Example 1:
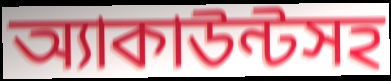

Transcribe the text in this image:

অ্যাকাউন্টসহ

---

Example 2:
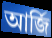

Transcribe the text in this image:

আর্জি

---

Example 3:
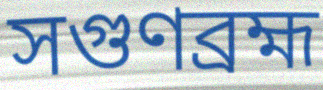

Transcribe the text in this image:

সগুণব্রহ্ম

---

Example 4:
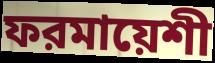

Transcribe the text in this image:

ফরমায়েশী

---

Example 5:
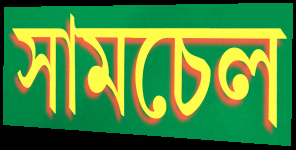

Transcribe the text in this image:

সামচেল